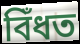
বিঁধত